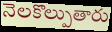
నెలకొల్పుతారు